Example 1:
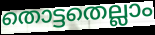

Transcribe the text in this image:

തൊട്ടതെല്ലാം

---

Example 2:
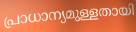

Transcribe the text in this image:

പ്രാധാന്യമുള്ളതായി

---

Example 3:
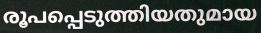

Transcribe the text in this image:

രൂപപ്പെടുത്തിയതുമായ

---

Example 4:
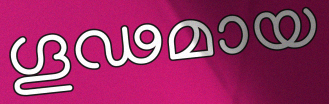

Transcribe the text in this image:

ഗൂഢമായ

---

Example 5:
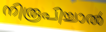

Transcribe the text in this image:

നിരൂപിച്ചാൽ